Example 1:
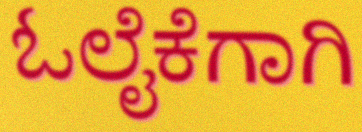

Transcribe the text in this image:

ಓಲೈಕೆಗಾಗಿ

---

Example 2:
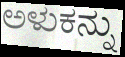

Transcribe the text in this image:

ಅಳುಕನ್ನು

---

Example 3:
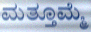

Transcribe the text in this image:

ಮತ್ತೂಮ್ಮೆ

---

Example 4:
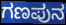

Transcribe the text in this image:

ಗಣಪುನ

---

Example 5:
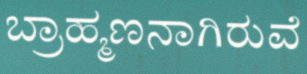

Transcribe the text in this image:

ಬ್ರಾಹ್ಮಣನಾಗಿರುವೆ